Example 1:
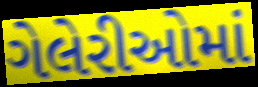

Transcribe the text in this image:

ગેલેરીઓમાં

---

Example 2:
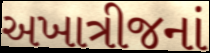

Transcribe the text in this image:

અખાત્રીજનાં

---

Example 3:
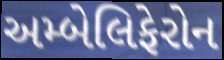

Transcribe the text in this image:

અમ્બેલિફેરોન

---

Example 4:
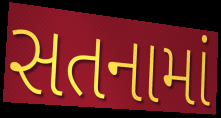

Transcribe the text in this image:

સતનામાં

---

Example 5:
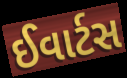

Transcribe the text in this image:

ઈવાર્ટસ